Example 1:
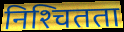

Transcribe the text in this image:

निश्चितता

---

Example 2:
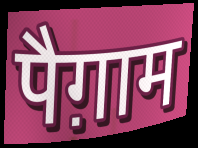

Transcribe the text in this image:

पैग़ाम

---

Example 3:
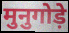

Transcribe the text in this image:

मुनुगोड़े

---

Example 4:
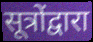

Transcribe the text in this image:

सूत्रोंद्वारा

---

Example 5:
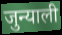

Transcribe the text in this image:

जुन्याली